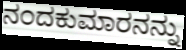
ನಂದಕುಮಾರನನ್ನು